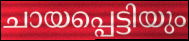
ചായപ്പെട്ടിയും